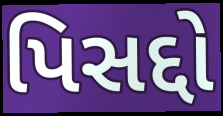
પિસદ્દો